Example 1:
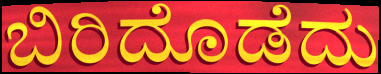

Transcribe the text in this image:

ಬಿರಿದೊಡೆದು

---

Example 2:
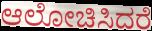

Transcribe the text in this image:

ಆಲೋಚಿಸಿದರೆ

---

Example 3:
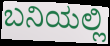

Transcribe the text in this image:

ಬನಿಯಲ್ಲಿ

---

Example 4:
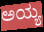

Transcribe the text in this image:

ಅಯ್ಯ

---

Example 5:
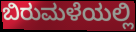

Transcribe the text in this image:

ಬಿರುಮಳೆಯಲ್ಲಿ